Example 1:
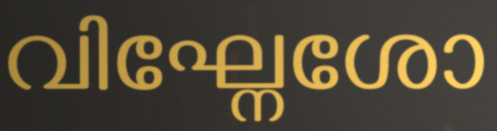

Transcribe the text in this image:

വിഘ്നേശോ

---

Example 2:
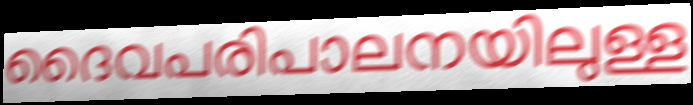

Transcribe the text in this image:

ദൈവപരിപാലനയിലുള്ള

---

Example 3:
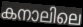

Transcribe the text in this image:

കനാലിലെ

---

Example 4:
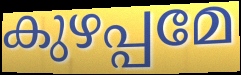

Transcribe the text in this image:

കുഴപ്പമേ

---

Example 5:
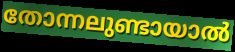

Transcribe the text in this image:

തോന്നലുണ്ടായാൽ